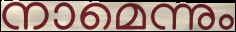
നാമെന്നും